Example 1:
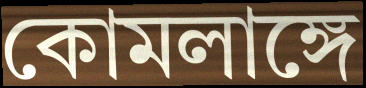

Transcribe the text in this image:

কোমলাঙ্গে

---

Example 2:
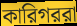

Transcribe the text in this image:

কারিগররা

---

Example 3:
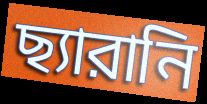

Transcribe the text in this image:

ছ্যারানি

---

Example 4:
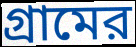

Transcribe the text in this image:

গ্রামের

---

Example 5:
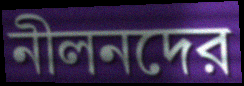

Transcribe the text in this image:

নীলনদের